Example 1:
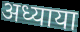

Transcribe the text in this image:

अध्याया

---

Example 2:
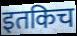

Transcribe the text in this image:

इतकिच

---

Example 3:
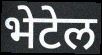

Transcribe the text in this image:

भेटेल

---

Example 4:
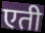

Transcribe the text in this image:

एती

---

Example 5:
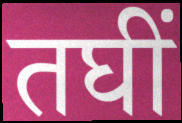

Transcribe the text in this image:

तघीं